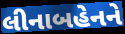
લીનાબહેનને